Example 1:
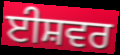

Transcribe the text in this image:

ਈਸ਼ਵਰ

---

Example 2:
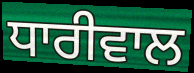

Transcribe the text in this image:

ਧਾਰੀਵਾਲ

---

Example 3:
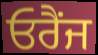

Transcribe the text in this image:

ਓਰੈਂਜ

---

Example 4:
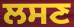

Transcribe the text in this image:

ਲਸਣ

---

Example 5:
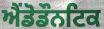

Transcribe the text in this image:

ਐਂਡੋਡੌਨਟਿਕ